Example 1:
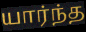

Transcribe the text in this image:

யார்ந்த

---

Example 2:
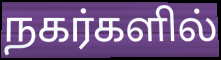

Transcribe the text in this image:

நகர்களில்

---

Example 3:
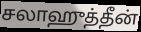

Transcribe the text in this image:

சலாஹுத்தீன்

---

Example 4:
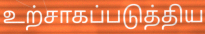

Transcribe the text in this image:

உற்சாகப்படுத்திய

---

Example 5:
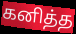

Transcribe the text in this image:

கனித்த